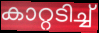
കാറ്റടിച്ച്